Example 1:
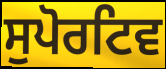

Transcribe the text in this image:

ਸੁਪੋਰਟਿਵ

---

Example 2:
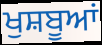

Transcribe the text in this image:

ਖੁਸ਼ਬੂਆਂ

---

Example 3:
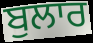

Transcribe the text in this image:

ਬੁਲਾਰ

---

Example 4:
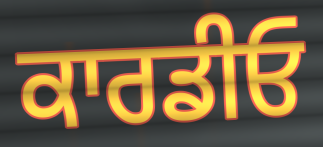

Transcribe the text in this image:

ਕਾਰਡੀਓ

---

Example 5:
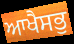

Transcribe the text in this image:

ਆਖੈਸਭੁ